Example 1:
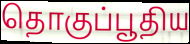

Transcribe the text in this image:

தொகுப்பூதிய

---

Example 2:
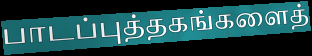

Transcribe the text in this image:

பாடப்புத்தகங்களைத்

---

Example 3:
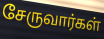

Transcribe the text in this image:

சேருவார்கள்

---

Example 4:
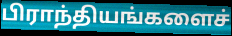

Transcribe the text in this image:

பிராந்தியங்களைச்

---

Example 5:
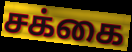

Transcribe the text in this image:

சக்கை